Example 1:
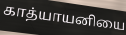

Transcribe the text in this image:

காத்யாயனியை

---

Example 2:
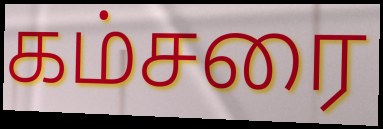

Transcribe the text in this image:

கம்சரை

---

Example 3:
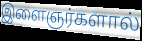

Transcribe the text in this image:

இளைஞர்களால்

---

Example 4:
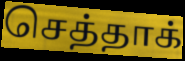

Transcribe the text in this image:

செத்தாக்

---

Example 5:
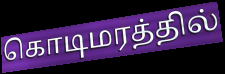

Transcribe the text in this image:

கொடிமரத்தில்